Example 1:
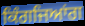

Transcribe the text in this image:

ਕਿੰਗਜਿਆਂਗ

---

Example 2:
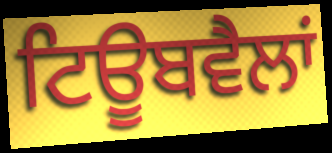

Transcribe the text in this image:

ਟਿਊਬਵੈਲਾਂ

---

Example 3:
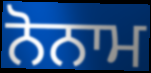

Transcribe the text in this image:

ਨੋਨਾਮ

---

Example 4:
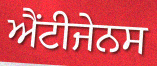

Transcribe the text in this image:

ਐਂਟੀਜੇਨਸ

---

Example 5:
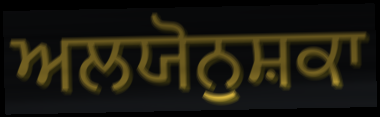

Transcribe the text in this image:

ਅਲਯੋਨੁਸ਼ਕਾ